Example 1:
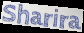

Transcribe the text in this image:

Sharira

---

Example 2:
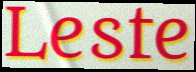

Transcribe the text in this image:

Leste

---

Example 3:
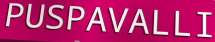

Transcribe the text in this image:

PUSPAVALLI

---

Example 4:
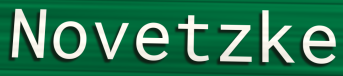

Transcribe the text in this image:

Novetzke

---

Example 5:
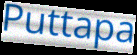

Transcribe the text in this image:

Puttapa